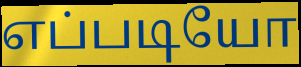
எப்படியோ